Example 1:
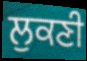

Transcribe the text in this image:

ਲੁਕਣੀ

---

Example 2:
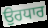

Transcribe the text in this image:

ਉਰਧਾਰ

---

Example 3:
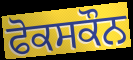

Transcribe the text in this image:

ਫੋਕਸਕੌਨ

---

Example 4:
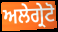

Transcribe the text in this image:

ਅਲੇਗ੍ਰੇਟੋ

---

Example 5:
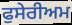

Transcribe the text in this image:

ਫੁਸੇਰੀਅਮ